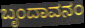
ಬೃಂದಾವನಂ